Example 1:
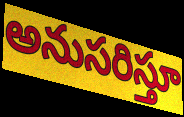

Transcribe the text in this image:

అనుసరిస్తూ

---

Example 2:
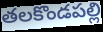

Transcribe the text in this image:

తలకొండపల్లి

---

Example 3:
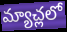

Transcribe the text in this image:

మ్యాచ్లలో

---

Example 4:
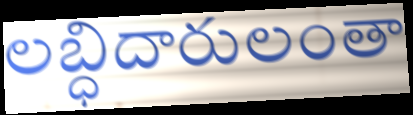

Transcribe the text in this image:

లబ్ధిదారులంతా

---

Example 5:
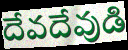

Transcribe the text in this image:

దేవదేవుడి